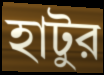
হাটুর